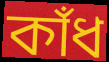
কাঁধ